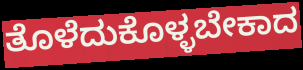
ತೊಳೆದುಕೊಳ್ಳಬೇಕಾದ